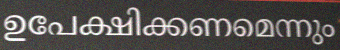
ഉപേക്ഷിക്കണമെന്നും